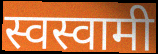
स्वस्वामी